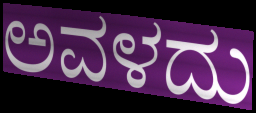
ಅವಳದು